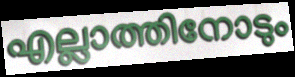
എല്ലാത്തിനോടും